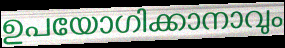
ഉപയോഗിക്കാനാവും